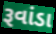
રૂવાંડા